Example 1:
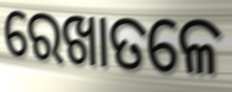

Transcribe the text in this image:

ରେଖାତଳେ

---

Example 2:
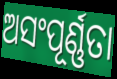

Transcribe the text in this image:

ଅସଂପୂର୍ଣ୍ଣତା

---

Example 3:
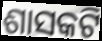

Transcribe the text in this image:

ଶାସକଟି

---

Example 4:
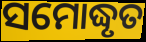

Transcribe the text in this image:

ସମୋଦ୍ଧୃତ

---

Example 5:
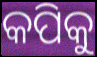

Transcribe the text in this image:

କପିକୁ